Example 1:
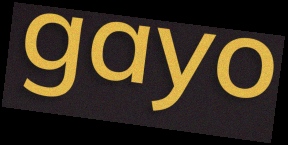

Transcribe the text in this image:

gayo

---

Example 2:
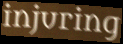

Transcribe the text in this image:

injuring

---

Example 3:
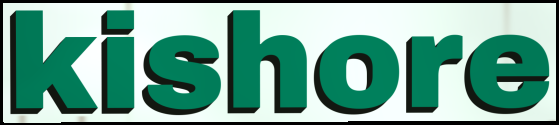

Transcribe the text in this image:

kishore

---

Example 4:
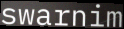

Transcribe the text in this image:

swarnim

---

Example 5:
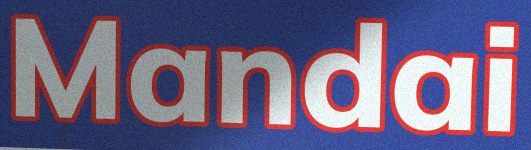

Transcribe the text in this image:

Mandai